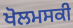
ਖੋਲਮਸਕੀ